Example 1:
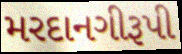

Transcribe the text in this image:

મરદાનગીરૂપી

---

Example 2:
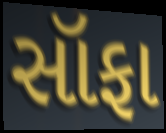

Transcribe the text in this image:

સૉફા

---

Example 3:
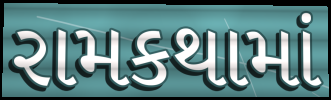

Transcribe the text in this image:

રામકથામાં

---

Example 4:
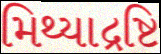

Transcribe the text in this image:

મિથ્યાદ્રષ્ટિ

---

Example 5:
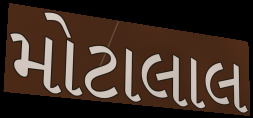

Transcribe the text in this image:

મોટાલાલ